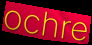
ochre